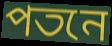
পতনে